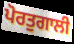
ਪੋਰਤੁਗਾਲੀ